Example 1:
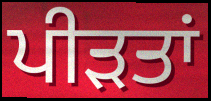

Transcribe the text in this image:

ਪੀਡ਼ਤਾਂ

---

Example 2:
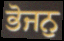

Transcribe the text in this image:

ਭੋਜਨੁ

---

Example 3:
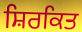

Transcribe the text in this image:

ਸ਼ਿਰਕਿਤ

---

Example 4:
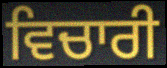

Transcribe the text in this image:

ਵਿਚਾਰੀ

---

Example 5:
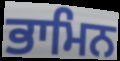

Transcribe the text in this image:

ਭਾਮਿਨ